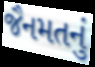
જૈનમતનું